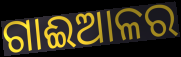
ଗାଈଆଳର